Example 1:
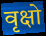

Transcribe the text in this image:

वृक्षो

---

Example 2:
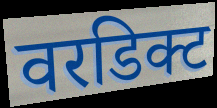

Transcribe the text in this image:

वरडिक्ट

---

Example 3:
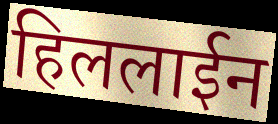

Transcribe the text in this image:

हिललाईन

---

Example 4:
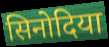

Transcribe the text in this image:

सिनोदिया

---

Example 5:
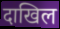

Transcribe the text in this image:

दाखिल